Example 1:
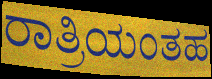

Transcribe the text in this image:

ರಾತ್ರಿಯಂತಹ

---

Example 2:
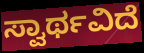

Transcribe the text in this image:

ಸ್ವಾರ್ಥವಿದೆ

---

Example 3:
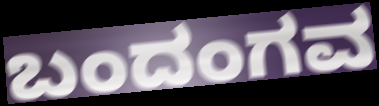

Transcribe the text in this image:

ಬಂದಂಗವ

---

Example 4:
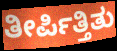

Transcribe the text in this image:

ತೀರ್ಪಿತ್ತಿತು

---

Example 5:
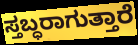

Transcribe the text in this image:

ಸ್ತಬ್ಧರಾಗುತ್ತಾರೆ